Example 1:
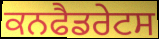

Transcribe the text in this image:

ਕਨਫੈਡਰੇਟਸ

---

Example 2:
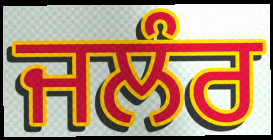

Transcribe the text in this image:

ਜਲੰਰ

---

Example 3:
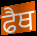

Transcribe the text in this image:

ਫੈਥ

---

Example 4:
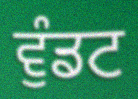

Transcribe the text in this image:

ਵੁੰਡਟ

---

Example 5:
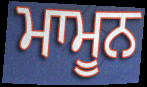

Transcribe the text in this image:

ਮਾਮੂਨ